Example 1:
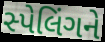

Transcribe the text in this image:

સ્પેલિંગને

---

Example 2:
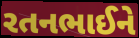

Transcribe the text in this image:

રતનભાઈને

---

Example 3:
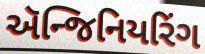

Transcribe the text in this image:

ઍન્જિનિયરિંગ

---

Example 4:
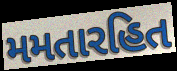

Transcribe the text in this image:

મમતારહિત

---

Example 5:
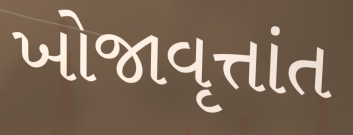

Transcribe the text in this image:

ખોજાવૃત્તાંત